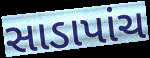
સાડાપાંચ